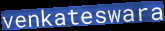
venkateswara